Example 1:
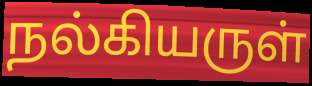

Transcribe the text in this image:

நல்கியருள்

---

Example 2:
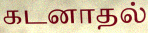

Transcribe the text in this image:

கடனாதல்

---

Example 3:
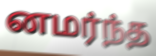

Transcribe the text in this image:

னமர்ந்த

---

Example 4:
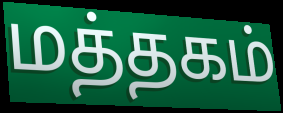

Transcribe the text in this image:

மத்தகம்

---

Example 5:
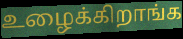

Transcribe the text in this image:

உழைக்கிறாங்க